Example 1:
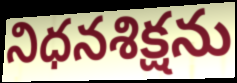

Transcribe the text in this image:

నిధనశిక్షను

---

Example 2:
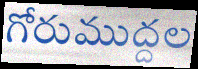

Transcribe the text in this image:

గోరుముద్దల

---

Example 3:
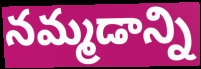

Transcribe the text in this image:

నమ్మడాన్ని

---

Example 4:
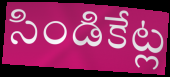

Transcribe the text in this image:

సిండికేట్ల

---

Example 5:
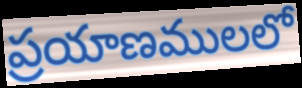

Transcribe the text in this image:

ప్రయాణములలో